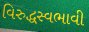
વિરુદ્ધસ્વભાવી